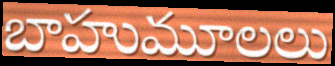
బాహుమూలలు